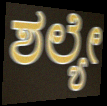
ಶಲ್ಯೇ